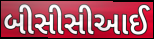
બીસીસીઆઈ